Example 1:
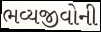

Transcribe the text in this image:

ભવ્યજીવોની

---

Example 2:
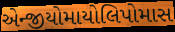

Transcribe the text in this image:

એન્જીયોમાયોલિપોમાસ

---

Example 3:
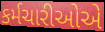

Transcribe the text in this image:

કર્મચારીઓએ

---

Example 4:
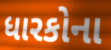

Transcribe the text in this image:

ધારકોના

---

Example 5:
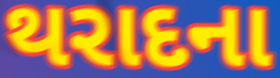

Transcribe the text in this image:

થરાદના